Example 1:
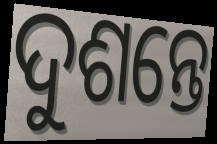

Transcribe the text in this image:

ଦୁଶନ୍ତେ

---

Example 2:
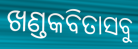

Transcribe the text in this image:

ଖଣ୍ଡକବିତାସବୁ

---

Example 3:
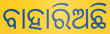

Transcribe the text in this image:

ବାହାରିଅଛି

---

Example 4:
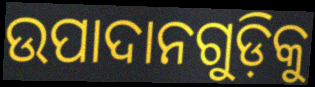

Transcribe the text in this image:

ଉପାଦାନଗୁଡ଼ିକୁ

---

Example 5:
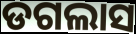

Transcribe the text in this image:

ଡଗଲାସ